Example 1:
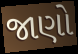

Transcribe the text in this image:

જાણો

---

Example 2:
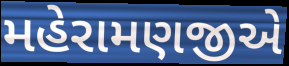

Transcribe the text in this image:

મહેરામણજીએ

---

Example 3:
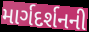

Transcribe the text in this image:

માર્ગદર્શનની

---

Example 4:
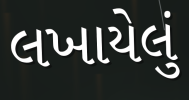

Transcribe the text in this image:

લખાયેલું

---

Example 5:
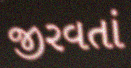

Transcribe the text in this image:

જીરવતાં